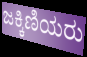
ಜಕ್ಕಿಣಿಯರು